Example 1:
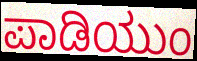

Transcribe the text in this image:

ಪಾಡಿಯುಂ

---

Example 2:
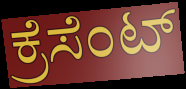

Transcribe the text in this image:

ಕ್ರೆಸೆಂಟ್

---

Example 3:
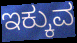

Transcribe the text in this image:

ಇಕ್ಕುವ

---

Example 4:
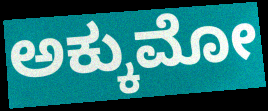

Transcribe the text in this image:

ಅಕ್ಕುಮೋ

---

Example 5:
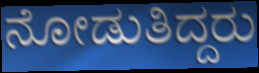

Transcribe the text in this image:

ನೋಡುತಿದ್ದರು